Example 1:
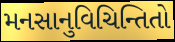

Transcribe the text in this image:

મનસાનુવિચિન્તિતો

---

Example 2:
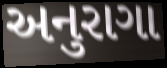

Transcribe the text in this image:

અનુરાગા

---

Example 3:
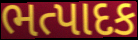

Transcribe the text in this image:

ભત્પાદક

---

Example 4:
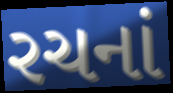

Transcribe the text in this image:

રચનાં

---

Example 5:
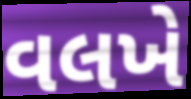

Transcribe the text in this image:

વલખે